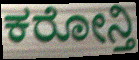
ಕರೋನ್ತಿ